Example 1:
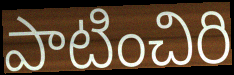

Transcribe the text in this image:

పాటించిరి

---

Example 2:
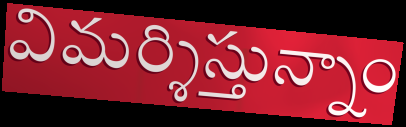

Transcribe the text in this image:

విమర్శిస్తున్నాం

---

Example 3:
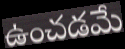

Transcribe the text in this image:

ఉంచడమే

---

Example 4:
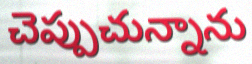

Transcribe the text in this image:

చెప్పుచున్నాను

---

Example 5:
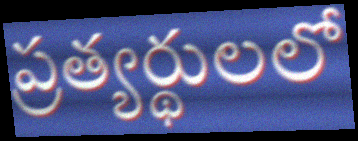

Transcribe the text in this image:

ప్రత్యర్థులలో